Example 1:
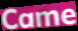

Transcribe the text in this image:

Came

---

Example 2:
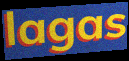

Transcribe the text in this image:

lagas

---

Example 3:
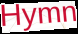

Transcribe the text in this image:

Hymn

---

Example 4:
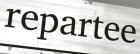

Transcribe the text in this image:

repartee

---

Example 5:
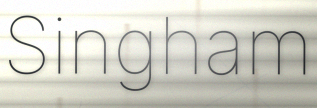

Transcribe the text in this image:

Singham